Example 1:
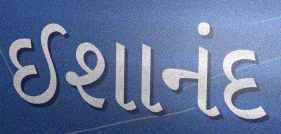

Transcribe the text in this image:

ઈશાનંદ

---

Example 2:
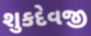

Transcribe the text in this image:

શુકદેવજી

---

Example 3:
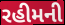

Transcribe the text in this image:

રહીમની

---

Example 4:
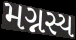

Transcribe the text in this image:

મગ્નસ્ય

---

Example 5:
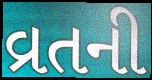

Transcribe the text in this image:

વ્રતની